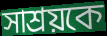
সাশ্রয়কে